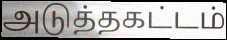
அடுத்தகட்டம்